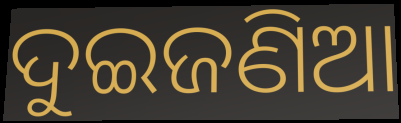
ଦୁଇଜଣିଆ